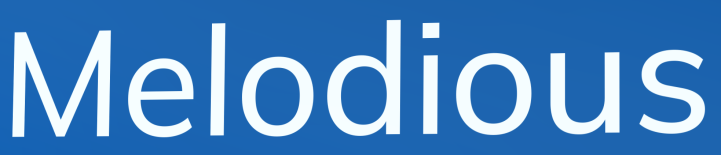
Melodious